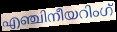
എഞ്ചിനീയറിംഗ്